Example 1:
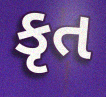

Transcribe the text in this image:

કૃત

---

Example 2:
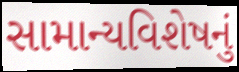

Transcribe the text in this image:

સામાન્યવિશેષનું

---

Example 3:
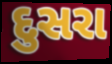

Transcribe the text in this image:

દુસરા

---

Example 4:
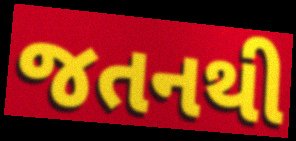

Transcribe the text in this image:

જતનથી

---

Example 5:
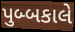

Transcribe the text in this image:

પુબ્બકાલે